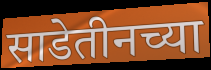
साडेतीनच्या